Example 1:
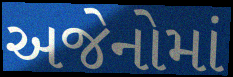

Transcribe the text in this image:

અજેનોમાં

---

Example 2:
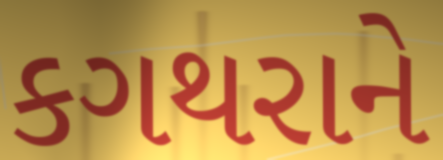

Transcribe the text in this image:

કગથરાને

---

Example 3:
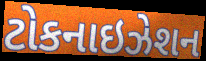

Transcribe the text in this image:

ટોકનાઇઝેશન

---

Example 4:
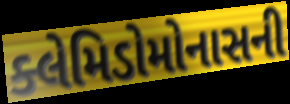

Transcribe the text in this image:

ક્લેમિડોમોનાસની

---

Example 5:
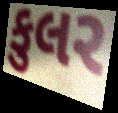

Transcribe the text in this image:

કુલર